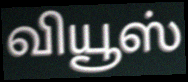
வியூஸ்